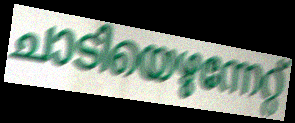
ചാടിയെഴുന്നേറ്റ്